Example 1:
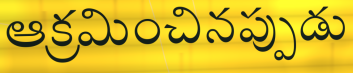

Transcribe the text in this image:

ఆక్రమించినప్పుడు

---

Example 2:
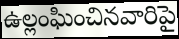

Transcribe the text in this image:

ఉల్లంఘించినవారిపై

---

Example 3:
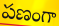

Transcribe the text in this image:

పణంగా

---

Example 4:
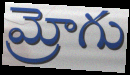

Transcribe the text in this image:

మ్రోగు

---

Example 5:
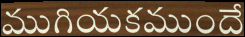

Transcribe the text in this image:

ముగియకముందే